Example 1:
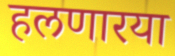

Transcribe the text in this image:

हलणारया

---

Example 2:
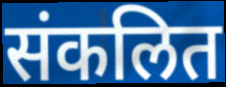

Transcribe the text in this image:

संकलित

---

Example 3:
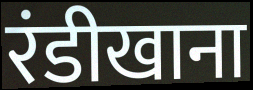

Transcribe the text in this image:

रंडीखाना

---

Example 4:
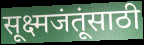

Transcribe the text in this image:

सूक्ष्मजंतूंसाठी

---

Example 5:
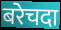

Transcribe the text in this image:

बरेचदा